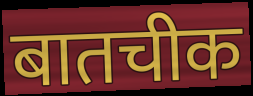
बातचीक